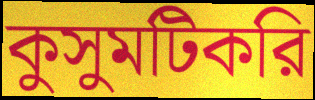
কুসুমটিকরি